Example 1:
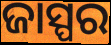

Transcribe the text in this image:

ଜାସ୍ପର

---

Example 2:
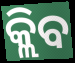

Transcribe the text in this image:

କ୍ଲିବ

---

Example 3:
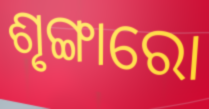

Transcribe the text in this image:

ଶୃଙ୍ଗାରୋ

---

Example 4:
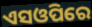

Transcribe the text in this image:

ଏସଓପିରେ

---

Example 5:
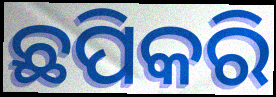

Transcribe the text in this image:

ଛପିକରି